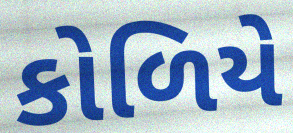
કોળિયે